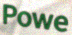
Powe